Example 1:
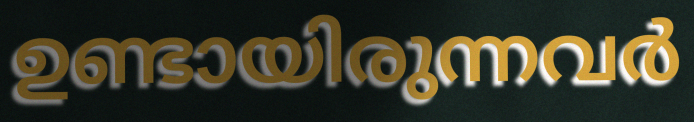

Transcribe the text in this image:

ഉണ്ടായിരുന്നവർ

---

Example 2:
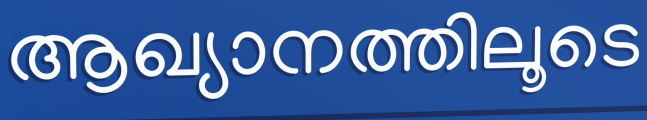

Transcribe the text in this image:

ആഖ്യാനത്തിലൂടെ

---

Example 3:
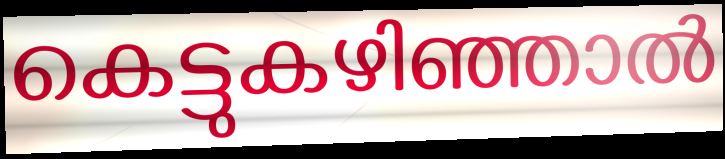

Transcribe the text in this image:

കെട്ടുകഴിഞ്ഞാൽ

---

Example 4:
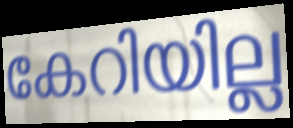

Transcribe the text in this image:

കേറിയില്ല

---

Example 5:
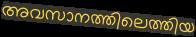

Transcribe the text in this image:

അവസാനത്തിലെത്തിയ